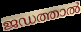
ജഡത്താൽ